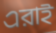
এরাই